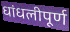
धांधलीपूर्ण